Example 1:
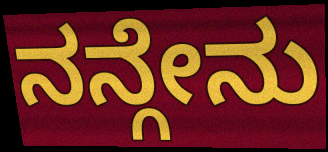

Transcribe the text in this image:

ನನ್ಗೇನು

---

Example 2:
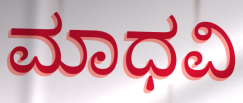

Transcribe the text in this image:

ಮಾಧವಿ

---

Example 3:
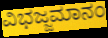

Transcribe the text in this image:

ವಿಭಜ್ಜಮಾನಂ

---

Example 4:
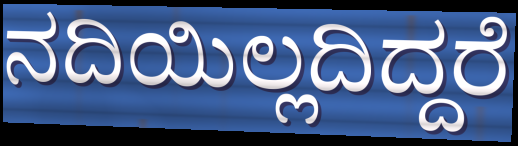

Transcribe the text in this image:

ನದಿಯಿಲ್ಲದಿದ್ದರೆ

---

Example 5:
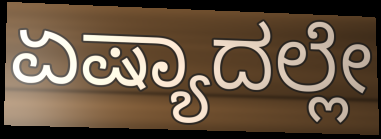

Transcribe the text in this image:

ಏಷ್ಯಾದಲ್ಲೇ